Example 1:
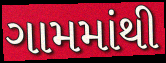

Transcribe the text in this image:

ગામમાંથી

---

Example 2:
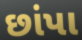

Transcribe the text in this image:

છાંપા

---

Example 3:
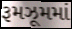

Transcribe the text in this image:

રૂમઝૂમમાં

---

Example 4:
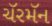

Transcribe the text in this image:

ચૅરમૅન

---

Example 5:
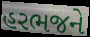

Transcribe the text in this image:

હરભજને